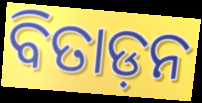
ବିତାଡ଼ନ